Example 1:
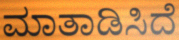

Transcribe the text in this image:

ಮಾತಾಡಿಸಿದೆ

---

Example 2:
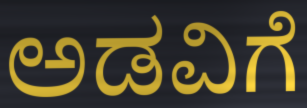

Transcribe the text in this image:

ಅಡವಿಗೆ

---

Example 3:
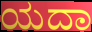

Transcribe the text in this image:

ಯದಾ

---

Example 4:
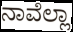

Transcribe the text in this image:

ನಾವೆಲ್ಲಾ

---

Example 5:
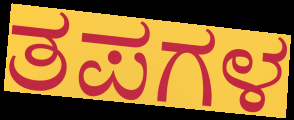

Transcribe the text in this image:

ತಪಗಳ